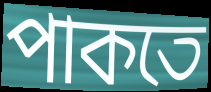
পাকতে